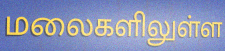
மலைகளிலுள்ள